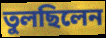
তুলছিলেন